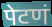
पेटणं